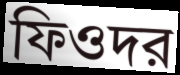
ফিওদর